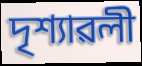
দৃশ্যাৱলী